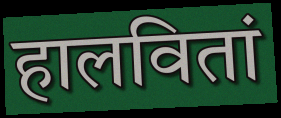
हालवितां